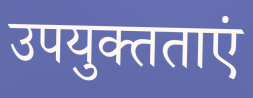
उपयुक्तताएं